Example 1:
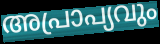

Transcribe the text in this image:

അപ്രാപ്യവും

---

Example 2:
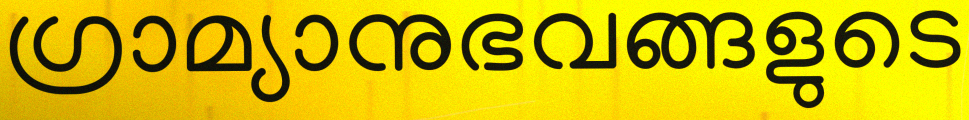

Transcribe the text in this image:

ഗ്രാമ്യാനുഭവങ്ങളുടെ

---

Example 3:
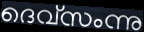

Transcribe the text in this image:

ദെവ്സംന്നു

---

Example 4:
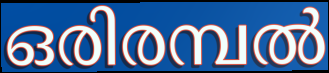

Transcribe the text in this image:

ഒരിരമ്പൽ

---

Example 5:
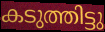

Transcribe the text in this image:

കടുത്തിട്ടു